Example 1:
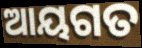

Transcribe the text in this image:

ଆୟଗତ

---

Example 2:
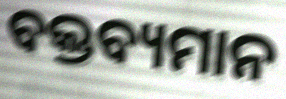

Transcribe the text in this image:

ବକ୍ତବ୍ୟମାନ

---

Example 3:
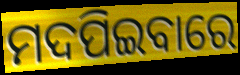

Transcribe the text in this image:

ମଦପିଇବାରେ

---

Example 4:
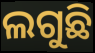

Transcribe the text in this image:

ଲଗୁଛି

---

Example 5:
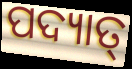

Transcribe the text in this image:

ପଦ୍ୟାତ୍